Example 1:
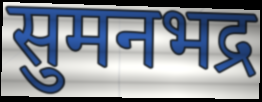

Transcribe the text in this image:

सुमनभद्र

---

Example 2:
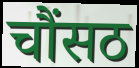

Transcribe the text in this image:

चौंसठ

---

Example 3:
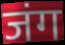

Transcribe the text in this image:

जंग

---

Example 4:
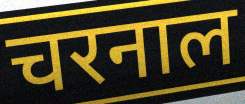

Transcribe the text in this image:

चरनाल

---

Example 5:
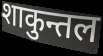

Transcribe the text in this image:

शाकुन्तल